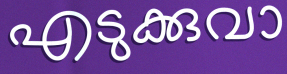
എടുക്കുവാ